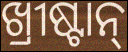
ଖ୍ରୀଷ୍ଟାନ୍